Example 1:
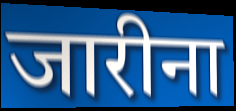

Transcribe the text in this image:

जारीना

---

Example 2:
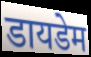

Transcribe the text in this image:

डायडेम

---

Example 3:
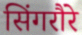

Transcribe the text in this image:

सिंगरौरे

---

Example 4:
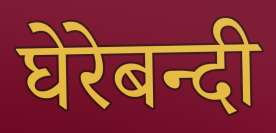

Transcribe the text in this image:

घेरेबन्दी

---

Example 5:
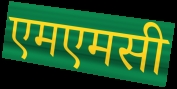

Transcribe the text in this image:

एमएमसी